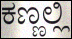
ಕಣ್ಣಲ್ಲಿ